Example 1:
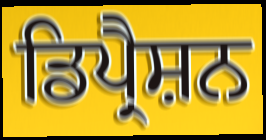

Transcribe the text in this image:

ਡਿਪ੍ਰੈਸ਼ਨ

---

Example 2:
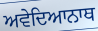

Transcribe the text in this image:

ਅਵੇਦਿਆਨਾਥ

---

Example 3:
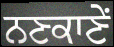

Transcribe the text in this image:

ਨਣਕਾਣੇਂ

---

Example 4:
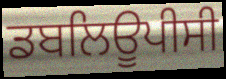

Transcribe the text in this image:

ਡਬਲਿਊਪੀਸੀ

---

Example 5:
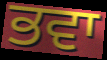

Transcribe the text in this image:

ਭਵਾ